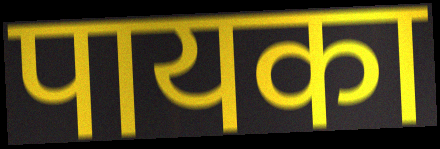
पायका